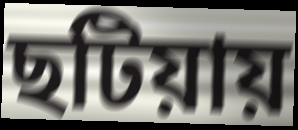
ছটিয়ায়